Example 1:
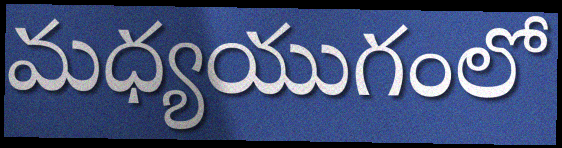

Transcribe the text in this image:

మధ్యయుగంలో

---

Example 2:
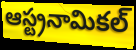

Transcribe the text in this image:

ఆస్ట్రనామికల్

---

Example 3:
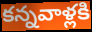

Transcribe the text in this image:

కన్నవాళ్లకి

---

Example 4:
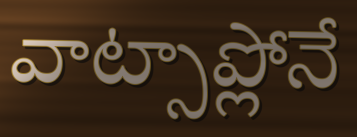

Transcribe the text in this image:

వాట్సాప్లోనే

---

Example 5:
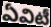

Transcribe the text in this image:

ఏవిటీ